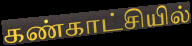
கண்காட்சியில்